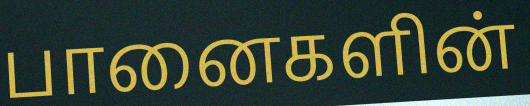
பானைகளின்